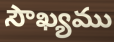
సౌఖ్యము